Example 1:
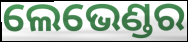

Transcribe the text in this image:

ଲେଭେଣ୍ଡର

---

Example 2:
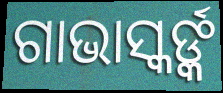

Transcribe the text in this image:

ଗାଭାସ୍କର୍ଙ୍କ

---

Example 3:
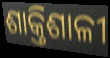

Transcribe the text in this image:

ଶାକ୍ତିଶାଳୀ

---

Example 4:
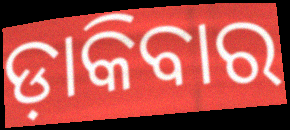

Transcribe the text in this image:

ଡ଼ାକିବାର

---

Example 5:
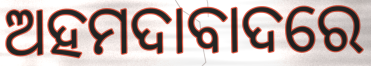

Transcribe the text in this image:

ଅହମଦାବାଦରେ